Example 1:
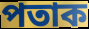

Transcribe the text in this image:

পতাক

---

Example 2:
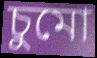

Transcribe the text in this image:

চুমো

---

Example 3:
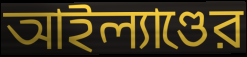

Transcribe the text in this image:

আইল্যাণ্ডের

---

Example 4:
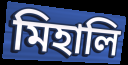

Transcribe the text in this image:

মিহালি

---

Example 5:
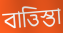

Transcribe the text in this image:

বাত্তিস্তা